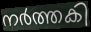
നർത്തകി